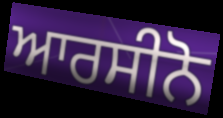
ਆਰਸੀਨੋ